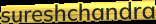
sureshchandra